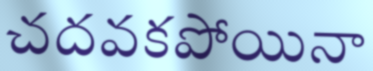
చదవకపోయినా